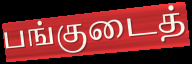
பங்குடைத்